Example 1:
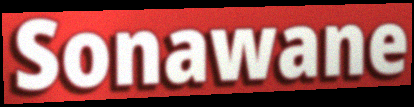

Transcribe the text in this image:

Sonawane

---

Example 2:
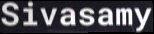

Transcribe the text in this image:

Sivasamy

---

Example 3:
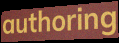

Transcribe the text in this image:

authoring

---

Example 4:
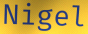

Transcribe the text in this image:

Nigel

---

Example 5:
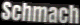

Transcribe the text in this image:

Schmach